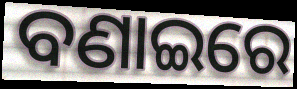
ବଣାଇରେ